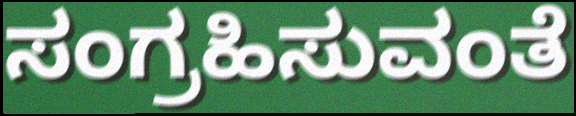
ಸಂಗ್ರಹಿಸುವಂತೆ